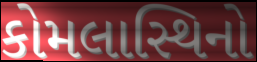
કોમલાસ્થિનો